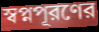
স্বপ্নপূরণের